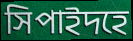
সিপাইদহে